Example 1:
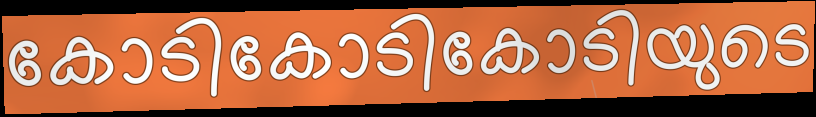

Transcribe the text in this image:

കോടികോടികോടിയുടെ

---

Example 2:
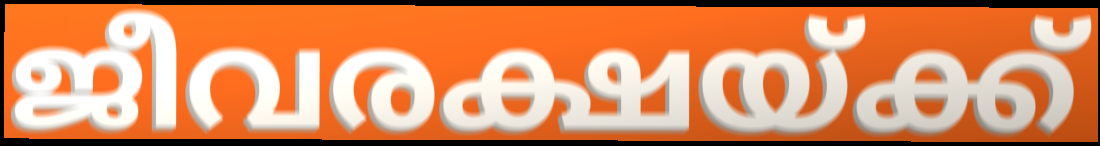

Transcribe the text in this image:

ജീവരക്ഷയ്ക്ക്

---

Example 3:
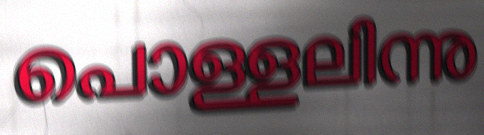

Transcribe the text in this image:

പൊള്ളലിന്നു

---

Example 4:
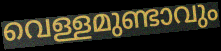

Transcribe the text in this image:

വെള്ളമുണ്ടാവും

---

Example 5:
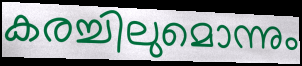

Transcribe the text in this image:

കരച്ചിലുമൊന്നും